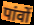
पांवों